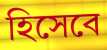
হিসেবে